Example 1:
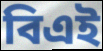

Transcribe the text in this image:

বিএই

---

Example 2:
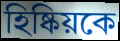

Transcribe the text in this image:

হিষ্কিয়কে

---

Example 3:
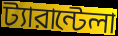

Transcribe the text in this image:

ট্যারান্টেলা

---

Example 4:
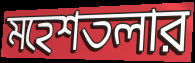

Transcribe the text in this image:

মহেশতলার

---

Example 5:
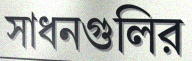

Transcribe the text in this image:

সাধনগুলির